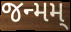
જન્મમ્